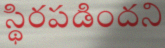
స్థిరపడిందని